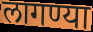
लागण्या